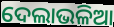
ଦେଲାଭଳିଆ